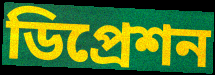
ডিপ্রেশন